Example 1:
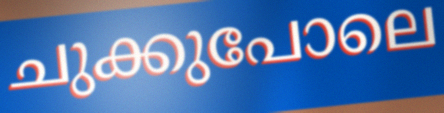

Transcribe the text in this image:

ചുക്കുപോലെ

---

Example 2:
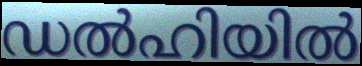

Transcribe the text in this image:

ഡൽഹിയിൽ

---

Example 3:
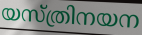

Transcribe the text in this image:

യസ്ത്രിനയന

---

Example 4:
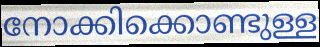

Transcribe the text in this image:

നോക്കിക്കൊണ്ടുള്ള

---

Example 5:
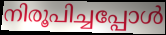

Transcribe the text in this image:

നിരൂപിച്ചപ്പോൾ